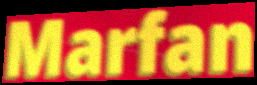
Marfan